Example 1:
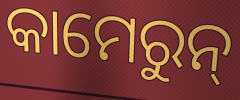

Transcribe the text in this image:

କାମେରୁନ୍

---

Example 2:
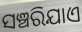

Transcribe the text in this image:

ସଞ୍ଚରିଯାଏ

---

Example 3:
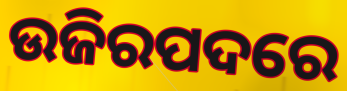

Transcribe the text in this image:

ଉଜିରପଦରେ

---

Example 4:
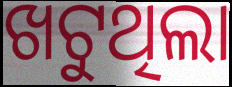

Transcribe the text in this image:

ଖଟୁଥିଲା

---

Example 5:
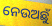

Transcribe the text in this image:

ନେଉଅଛୁଁ